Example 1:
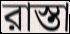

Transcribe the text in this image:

রাস্তা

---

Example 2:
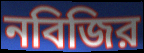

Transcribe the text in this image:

নবিজির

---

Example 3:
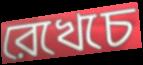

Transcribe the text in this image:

রেখেচে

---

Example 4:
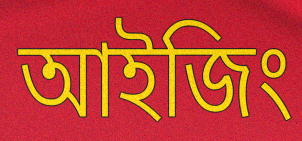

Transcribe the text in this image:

আইজিং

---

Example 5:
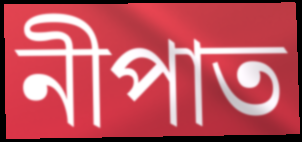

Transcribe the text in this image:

নীপাত